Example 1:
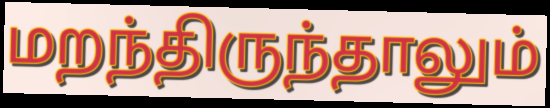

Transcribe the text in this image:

மறந்திருந்தாலும்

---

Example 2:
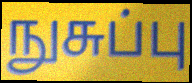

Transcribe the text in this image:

நுசுப்பு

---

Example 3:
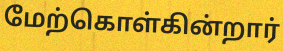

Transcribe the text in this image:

மேற்கொள்கின்றார்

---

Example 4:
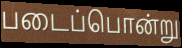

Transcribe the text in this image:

படைப்பொன்று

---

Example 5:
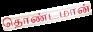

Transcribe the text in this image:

தொண்டமான்